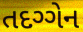
તદગ્ગેન